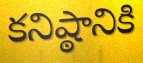
కనిష్ఠానికి